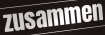
zusammen